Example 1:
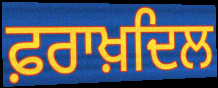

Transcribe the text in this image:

ਫ਼ਰਾਖ਼ਦਿਲ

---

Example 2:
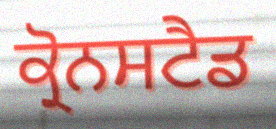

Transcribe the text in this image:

ਕ੍ਰੋਨਸਟੈਡ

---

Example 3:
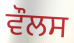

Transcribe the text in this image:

ਵੌਲਸ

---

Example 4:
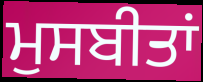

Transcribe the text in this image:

ਮੁਸਬੀਤਾਂ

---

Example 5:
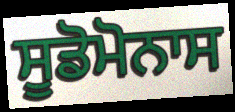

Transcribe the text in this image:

ਸੂਡੋਮੋਨਾਸ